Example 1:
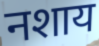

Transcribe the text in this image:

नशाय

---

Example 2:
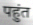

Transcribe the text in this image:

पहुंत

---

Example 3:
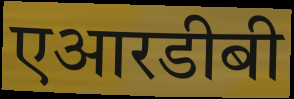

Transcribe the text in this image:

एआरडीबी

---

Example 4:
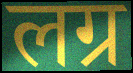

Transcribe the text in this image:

लग्र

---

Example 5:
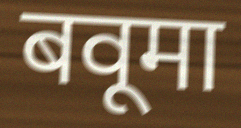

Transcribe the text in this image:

बवूमा